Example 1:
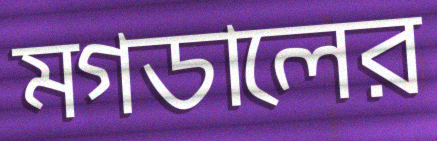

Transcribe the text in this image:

মগডালের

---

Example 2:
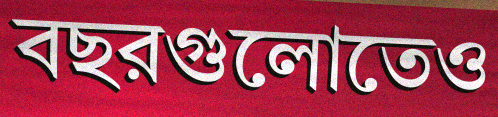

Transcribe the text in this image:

বছরগুলোতেও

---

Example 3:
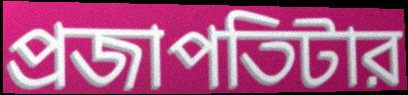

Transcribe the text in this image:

প্রজাপতিটার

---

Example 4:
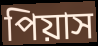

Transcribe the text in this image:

পিয়াস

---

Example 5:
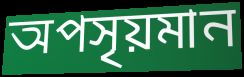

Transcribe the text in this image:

অপসৃয়মান